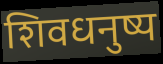
शिवधनुष्य